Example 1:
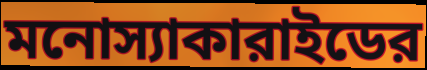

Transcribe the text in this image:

মনোস্যাকারাইডের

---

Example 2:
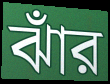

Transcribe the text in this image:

ঝাঁর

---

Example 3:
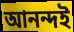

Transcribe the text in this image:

আনন্দই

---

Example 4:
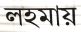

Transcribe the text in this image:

লহমায়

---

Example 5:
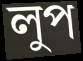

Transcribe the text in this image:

লুপ